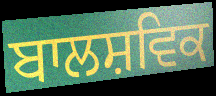
ਬਾਲਸ਼ਵਿਕ